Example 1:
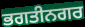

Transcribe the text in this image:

ਭਗਤੀਨਗਰ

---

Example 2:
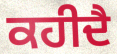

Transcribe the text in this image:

ਕਹੀਦੈ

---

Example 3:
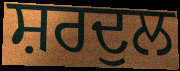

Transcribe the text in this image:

ਸ਼ਰਦੁਲ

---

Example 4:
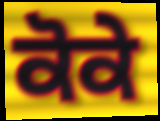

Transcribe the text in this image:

ਕੋਕੇ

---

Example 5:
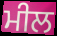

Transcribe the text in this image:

ਮੀਲ